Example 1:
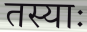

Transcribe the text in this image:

तस्याः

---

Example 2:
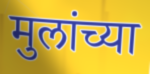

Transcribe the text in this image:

मुलांच्या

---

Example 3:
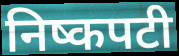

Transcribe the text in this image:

निष्कपटी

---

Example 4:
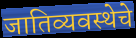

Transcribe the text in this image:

जातिव्यवस्थेचे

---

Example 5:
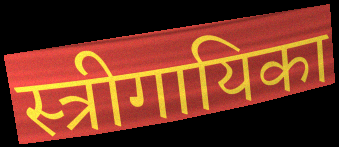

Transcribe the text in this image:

स्त्रीगायिका